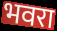
भवरा